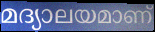
മദ്യാലയമാണ്